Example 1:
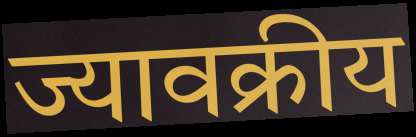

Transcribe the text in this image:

ज्यावक्रीय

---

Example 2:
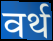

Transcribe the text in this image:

वर्थ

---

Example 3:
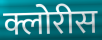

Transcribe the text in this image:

क्लोरीस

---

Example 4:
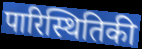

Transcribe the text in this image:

पारिस्थितिकी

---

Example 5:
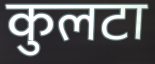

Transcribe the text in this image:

कुलटा